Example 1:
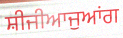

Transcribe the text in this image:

ਸ਼ੀਜੀਆਜੁਆਂਗ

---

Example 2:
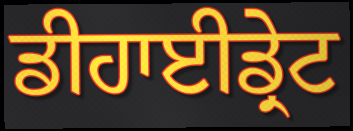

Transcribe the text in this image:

ਡੀਹਾਈਡ੍ਰੇਟ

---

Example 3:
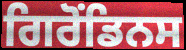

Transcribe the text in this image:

ਗਿਰੋਂਡਿਨਸ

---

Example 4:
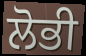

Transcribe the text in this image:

ਲੋਭੀ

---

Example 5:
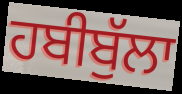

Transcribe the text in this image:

ਹਬੀਬੁੱਲਾ